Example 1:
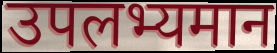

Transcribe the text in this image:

उपलभ्यमान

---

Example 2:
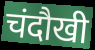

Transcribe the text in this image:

चंदौखी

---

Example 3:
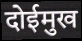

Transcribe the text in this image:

दोईमुख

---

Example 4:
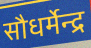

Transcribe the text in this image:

सौधर्मेन्द्र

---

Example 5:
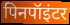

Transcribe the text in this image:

पिनपॉइंटर